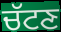
ਚੱਟਣ